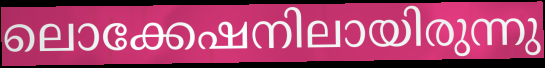
ലൊക്കേഷനിലായിരുന്നു